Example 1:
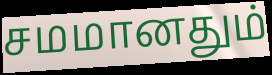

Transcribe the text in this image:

சமமானதும்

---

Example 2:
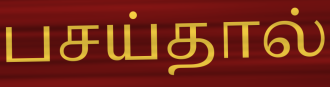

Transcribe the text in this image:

பசய்தால்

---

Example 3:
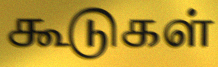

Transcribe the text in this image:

கூடுகள்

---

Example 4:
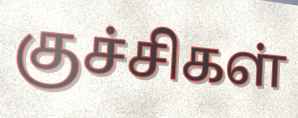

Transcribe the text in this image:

குச்சிகள்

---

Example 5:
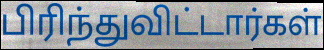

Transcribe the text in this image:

பிரிந்துவிட்டார்கள்